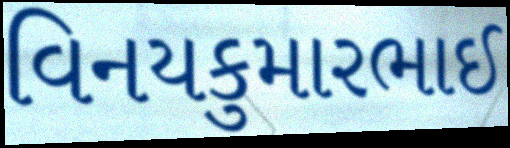
વિનયકુમારભાઈ